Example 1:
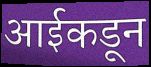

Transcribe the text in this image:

आईकडून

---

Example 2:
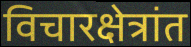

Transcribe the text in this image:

विचारक्षेत्रांत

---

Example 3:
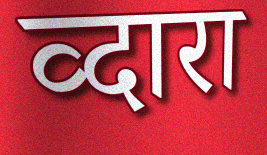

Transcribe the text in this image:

व्दारा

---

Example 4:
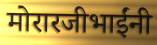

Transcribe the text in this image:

मोरारजीभाईंनी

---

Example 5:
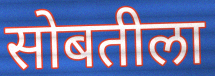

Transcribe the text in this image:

सोबतीला